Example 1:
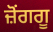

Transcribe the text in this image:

ਜ਼ੋਂਗਗੂ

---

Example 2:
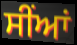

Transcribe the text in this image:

ਸੀਂਆਂ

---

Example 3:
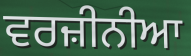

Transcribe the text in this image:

ਵਰਜ਼ੀਨੀਆ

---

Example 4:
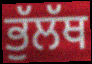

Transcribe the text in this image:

ਭੁੱਲੱਥ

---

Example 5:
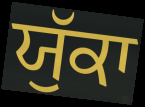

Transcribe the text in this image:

ਯੁੱਕਾ